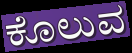
ಕೊಲುವ